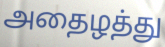
அதைழத்து